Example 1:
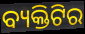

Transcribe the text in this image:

ବ୍ୟକ୍ତିଟିର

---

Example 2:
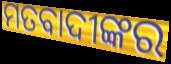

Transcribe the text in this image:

ମତବାଦୀଙ୍କର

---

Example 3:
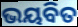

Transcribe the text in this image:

ଭୟବିତ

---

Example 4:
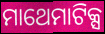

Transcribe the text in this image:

ମାଥେମାଟିକ୍ସ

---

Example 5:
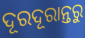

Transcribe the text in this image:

ଦୂରଦୂରାନ୍ତରୁ